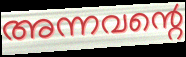
അന്നവന്റെ